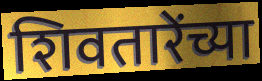
शिवतारेंच्या